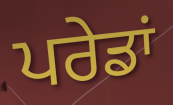
ਪਰੇਡਾਂ